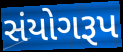
સંયોગરૂપ